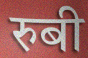
रुबी